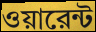
ওয়ারেন্ট